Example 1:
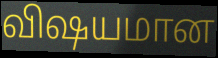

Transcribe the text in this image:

விஷயமான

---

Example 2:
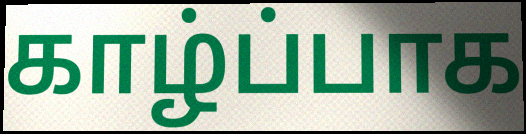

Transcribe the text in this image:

காழ்ப்பாக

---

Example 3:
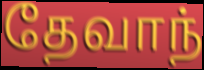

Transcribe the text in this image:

தேவாந்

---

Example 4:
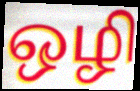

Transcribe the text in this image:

ஒழி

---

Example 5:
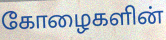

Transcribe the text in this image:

கோழைகளின்